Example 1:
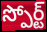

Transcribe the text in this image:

స్పోర్ట్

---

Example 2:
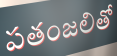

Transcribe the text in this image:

పతంజలితో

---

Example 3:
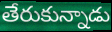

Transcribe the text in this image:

తేరుకున్నాడు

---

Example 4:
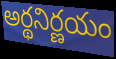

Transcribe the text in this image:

అర్థనిర్ణయం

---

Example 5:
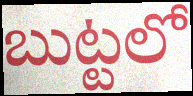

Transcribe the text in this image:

బుట్టలో